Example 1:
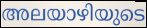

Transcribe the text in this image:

അലയാഴിയുടെ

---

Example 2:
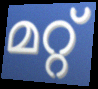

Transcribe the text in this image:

മറ്റ്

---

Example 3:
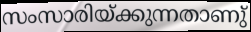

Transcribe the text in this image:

സംസാരിയ്ക്കുന്നതാണു്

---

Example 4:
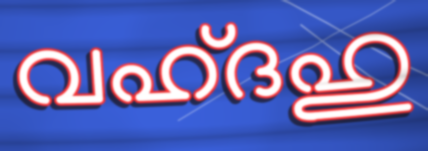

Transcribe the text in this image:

വഹ്ദഹു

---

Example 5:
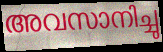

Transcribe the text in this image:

അവസാനിച്ചു